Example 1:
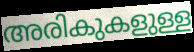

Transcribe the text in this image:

അരികുകളുള്ള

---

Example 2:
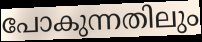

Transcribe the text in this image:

പോകുന്നതിലും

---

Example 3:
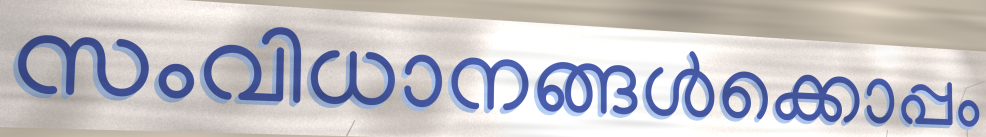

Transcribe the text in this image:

സംവിധാനങ്ങൾക്കൊപ്പം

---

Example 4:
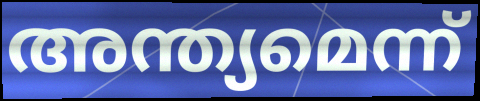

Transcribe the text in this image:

അന്ത്യമെന്ന്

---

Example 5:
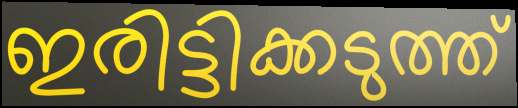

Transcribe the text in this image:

ഇരിട്ടിക്കടുത്ത്